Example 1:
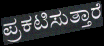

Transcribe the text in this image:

ಪ್ರಕಟಿಸುತ್ತಾರೆ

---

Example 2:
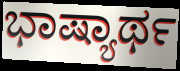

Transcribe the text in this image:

ಭಾಷ್ಯಾರ್ಥ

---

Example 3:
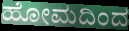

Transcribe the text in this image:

ಹೋಮದಿಂದ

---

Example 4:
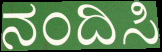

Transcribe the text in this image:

ನಂದಿಸಿ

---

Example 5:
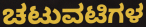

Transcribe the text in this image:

ಚಟುವಟಿಗಳ